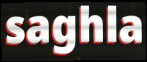
saghla